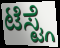
ಟೆಸ್ಟ್ಗೆ